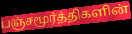
பஞ்சமூர்த்திகளின்